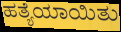
ಹತ್ಯೆಯಾಯಿತು